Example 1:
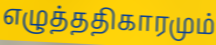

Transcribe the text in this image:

எழுத்ததிகாரமும்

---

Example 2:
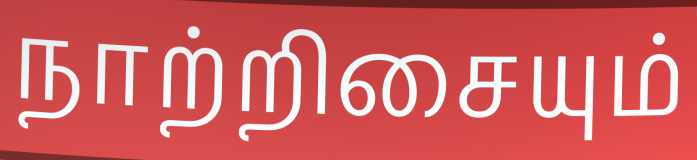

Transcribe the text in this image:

நாற்றிசையும்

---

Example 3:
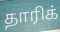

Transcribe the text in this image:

தாரிக்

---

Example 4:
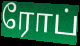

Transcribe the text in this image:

ரோப்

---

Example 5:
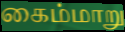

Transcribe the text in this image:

கைம்மாறு